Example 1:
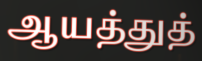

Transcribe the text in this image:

ஆயத்துத்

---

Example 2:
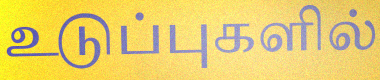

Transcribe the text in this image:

உடுப்புகளில்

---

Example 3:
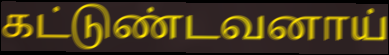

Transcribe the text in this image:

கட்டுண்டவனாய்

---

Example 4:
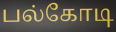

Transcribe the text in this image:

பல்கோடி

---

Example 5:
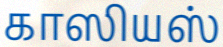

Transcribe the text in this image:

காஸியஸ்